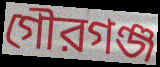
গৌরগঞ্জ